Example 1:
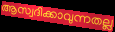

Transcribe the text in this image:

ആസ്വദിക്കാവുന്നതല്ല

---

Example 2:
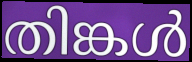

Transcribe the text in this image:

തിങ്കൾ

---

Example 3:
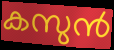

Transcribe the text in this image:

കസുൻ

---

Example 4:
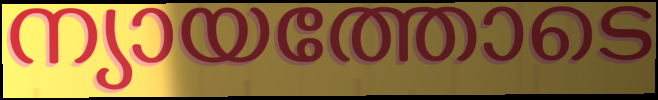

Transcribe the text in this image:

ന്യായത്തോടെ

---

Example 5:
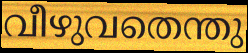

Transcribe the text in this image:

വീഴുവതെന്തു